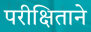
परीक्षिताने